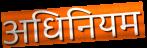
अधिनियम